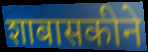
शाबासकीने